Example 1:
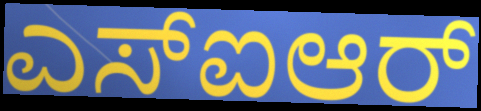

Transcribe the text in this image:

ಎಸ್ಐಆರ್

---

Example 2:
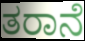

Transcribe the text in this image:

ತರಾನೆ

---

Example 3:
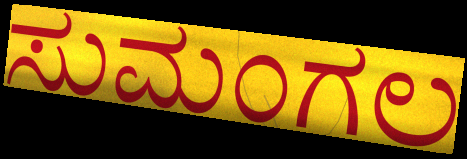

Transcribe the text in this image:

ಸುಮಂಗಲ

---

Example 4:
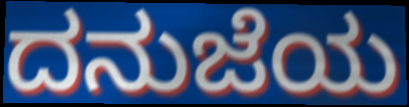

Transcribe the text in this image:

ದನುಜೆಯ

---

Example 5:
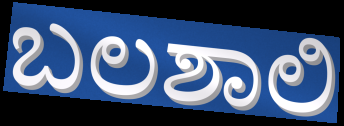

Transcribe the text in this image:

ಬಲಶಾಲಿ